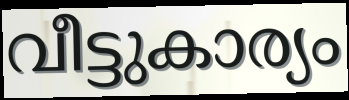
വീട്ടുകാര്യം